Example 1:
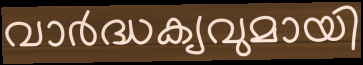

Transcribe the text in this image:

വാർദ്ധക്യവുമായി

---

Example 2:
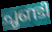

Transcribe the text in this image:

ചൂണ്ടി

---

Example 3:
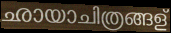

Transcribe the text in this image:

ഛായാചിത്രങ്ങള്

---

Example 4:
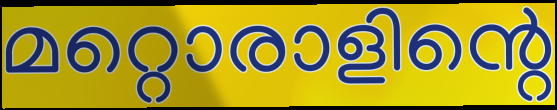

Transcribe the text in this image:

മറ്റൊരാളിന്റെ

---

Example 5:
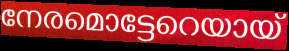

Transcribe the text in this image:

നേരമൊട്ടേറെയായ്